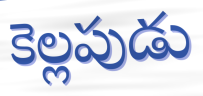
కెల్లపుడు